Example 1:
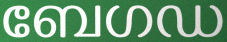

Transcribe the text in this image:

ബേഗഡ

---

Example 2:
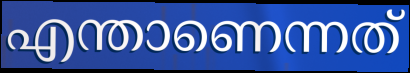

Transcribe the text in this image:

എന്താണെന്നത്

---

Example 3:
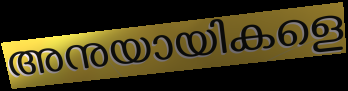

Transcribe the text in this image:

അനുയായികളെ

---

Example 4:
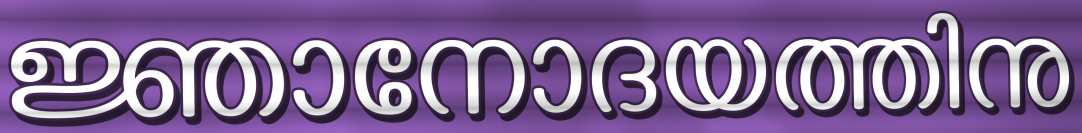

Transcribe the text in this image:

ജ്ഞാനോദയത്തിനു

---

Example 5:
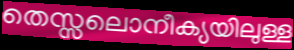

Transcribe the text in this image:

തെസ്സലൊനീക്യയിലുള്ള